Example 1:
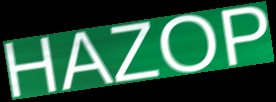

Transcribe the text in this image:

HAZOP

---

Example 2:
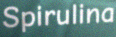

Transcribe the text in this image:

Spirulina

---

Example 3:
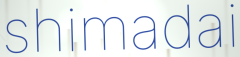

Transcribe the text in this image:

shimadai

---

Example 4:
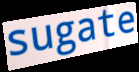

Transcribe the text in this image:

sugate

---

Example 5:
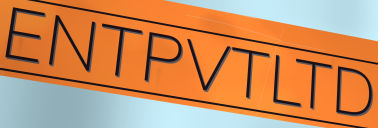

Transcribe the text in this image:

ENTPVTLTD